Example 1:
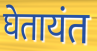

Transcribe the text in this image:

घेतायंत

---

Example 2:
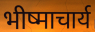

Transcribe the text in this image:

भीष्माचार्य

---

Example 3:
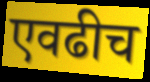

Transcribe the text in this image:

एवढीच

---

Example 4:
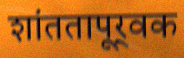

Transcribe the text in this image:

शांततापूर्वक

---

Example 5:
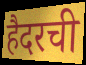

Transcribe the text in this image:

हैदरची